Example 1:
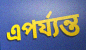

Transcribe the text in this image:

এপর্য্যন্ত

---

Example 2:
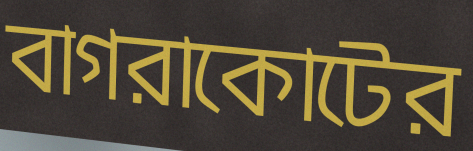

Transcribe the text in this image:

বাগরাকোটের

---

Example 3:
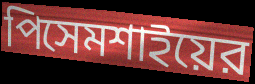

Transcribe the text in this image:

পিসেমশাইয়ের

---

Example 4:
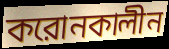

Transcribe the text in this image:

করোনকালীন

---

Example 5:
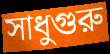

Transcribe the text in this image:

সাধুগুরু